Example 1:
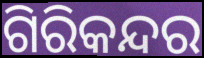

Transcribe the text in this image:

ଗିରିକନ୍ଦର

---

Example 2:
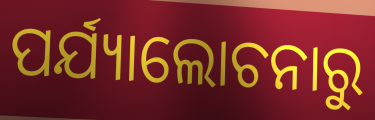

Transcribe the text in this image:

ପର୍ଯ୍ୟାଲୋଚନାରୁ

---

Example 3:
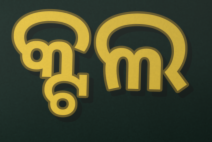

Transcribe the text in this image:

କ୍ଟଲ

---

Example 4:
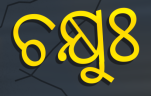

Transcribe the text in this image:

ଚକ୍ଷୁଃ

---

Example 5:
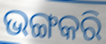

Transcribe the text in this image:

ଭଙ୍ଗକରି